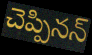
చెప్పినన్